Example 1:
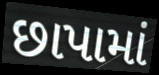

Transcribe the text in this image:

છાપામાં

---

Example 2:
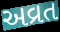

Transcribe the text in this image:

અવ્રત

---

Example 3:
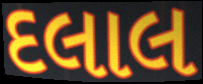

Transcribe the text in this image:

દલાલ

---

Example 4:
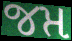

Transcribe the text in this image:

જપ્ત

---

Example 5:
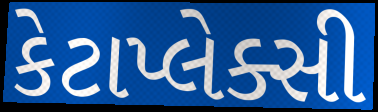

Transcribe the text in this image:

કેટાપ્લેક્સી